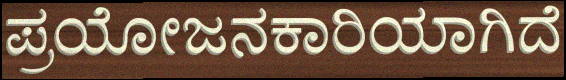
ಪ್ರಯೋಜನಕಾರಿಯಾಗಿದೆ